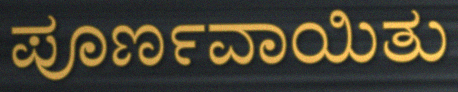
ಪೂರ್ಣವಾಯಿತು